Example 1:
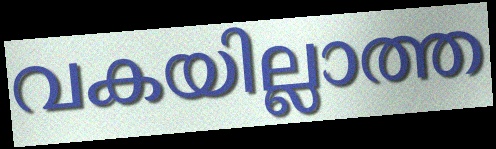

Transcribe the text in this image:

വകയില്ലാത്ത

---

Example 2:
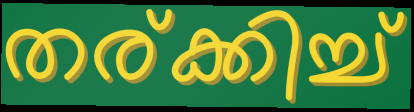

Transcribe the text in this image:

തര്ക്കിച്ച്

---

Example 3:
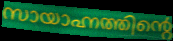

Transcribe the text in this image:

സായാഹ്നത്തിന്റെ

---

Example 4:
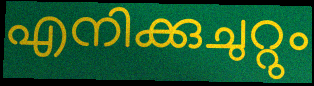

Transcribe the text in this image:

എനിക്കുചുറ്റും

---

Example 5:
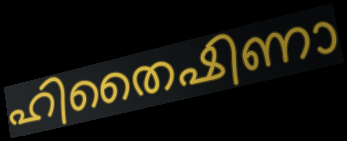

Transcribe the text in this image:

ഹിതൈഷിണാ